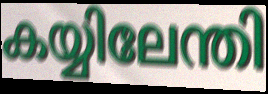
കയ്യിലേന്തി